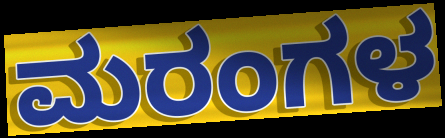
ಮರಂಗಳ